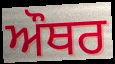
ਔਥਰ